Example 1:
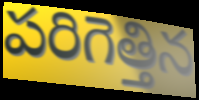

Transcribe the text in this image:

పరిగెత్తిన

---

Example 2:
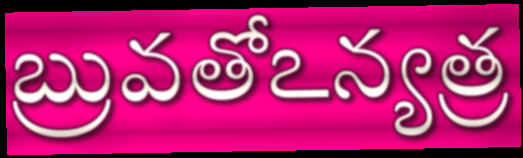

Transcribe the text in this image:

బ్రువతోఽన్యత్ర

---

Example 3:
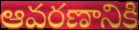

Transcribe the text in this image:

ఆవరణానికి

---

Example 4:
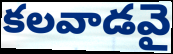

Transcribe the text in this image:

కలవాడవై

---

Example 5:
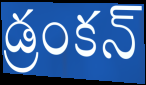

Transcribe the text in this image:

డ్రంకన్